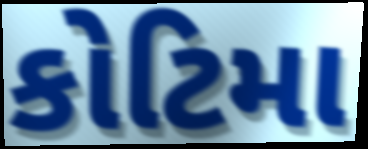
કોટિમા